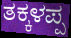
ತಕ್ಕಳಪ್ಪ